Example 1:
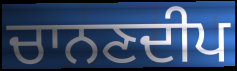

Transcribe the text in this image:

ਚਾਨਣਦੀਪ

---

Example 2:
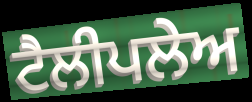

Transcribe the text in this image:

ਟੈਲੀਪਲੇਅ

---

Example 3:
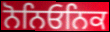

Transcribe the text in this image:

ਨੋਨਿਓਨਿਕ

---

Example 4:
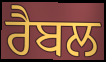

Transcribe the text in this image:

ਰੈਬਲ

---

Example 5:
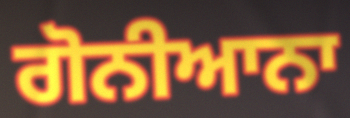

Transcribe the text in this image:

ਗੋਨੀਆਨਾ